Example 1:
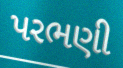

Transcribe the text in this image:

પરભણી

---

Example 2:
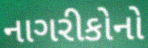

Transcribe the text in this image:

નાગરીકોનો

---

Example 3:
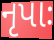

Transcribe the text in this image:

નૃપાઃ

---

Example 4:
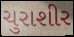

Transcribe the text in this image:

ચુરાશીર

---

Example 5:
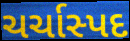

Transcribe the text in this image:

ચર્ચાસ્પદ